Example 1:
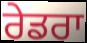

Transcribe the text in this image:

ਰੇਡਰਾ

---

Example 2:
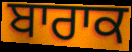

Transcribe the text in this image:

ਬਾਰਾਕ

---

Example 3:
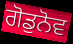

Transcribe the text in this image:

ਗੋਡੁਨੋਵ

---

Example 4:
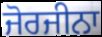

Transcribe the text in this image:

ਜੋਰਜੀਨਾ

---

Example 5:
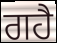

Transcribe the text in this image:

ਗਹੈ